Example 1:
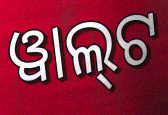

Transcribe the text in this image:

ୱାଲ୍‌ଟ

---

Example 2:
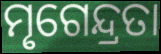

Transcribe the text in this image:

ମୃଗେନ୍ଦ୍ରତା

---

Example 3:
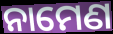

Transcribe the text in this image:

ନାମେଣ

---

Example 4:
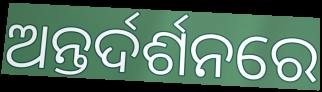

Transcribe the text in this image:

ଅନ୍ତର୍ଦର୍ଶନରେ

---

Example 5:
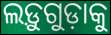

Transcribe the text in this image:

ଲଡ଼ୁଗୁଡ଼ାକୁ